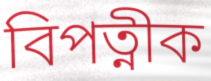
বিপত্নীক